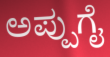
ಅಪ್ಪುಗೈ